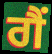
ਗੈਂ